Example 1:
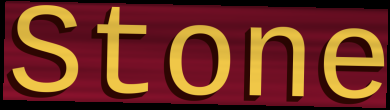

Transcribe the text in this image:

Stone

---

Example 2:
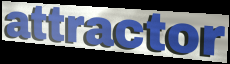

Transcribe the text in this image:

attractor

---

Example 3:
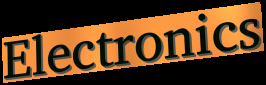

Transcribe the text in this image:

Electronics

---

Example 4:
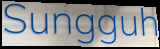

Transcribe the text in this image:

Sungguh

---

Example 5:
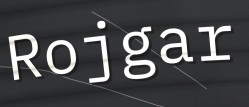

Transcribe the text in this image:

Rojgar